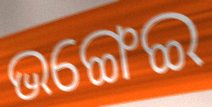
ଭଙ୍ଗେଇ